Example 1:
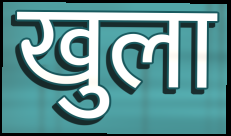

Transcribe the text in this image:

खुला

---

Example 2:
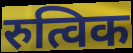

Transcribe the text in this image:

रुत्विक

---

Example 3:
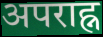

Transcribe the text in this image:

अपराह्न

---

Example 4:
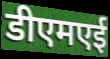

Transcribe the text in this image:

डीएमएई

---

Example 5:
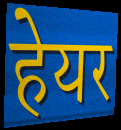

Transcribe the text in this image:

हेयर